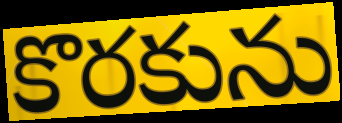
కొరకును